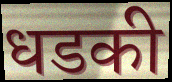
धडकी